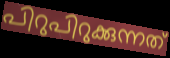
പിറുപിറുക്കുന്നത്